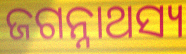
ଜଗନ୍ନାଥସ୍ୟ